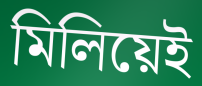
মিলিয়েই